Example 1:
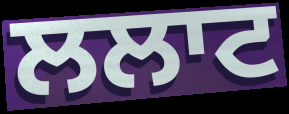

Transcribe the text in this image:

ਲਲਾਟ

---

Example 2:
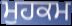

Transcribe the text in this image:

ਮੁਹਕਮ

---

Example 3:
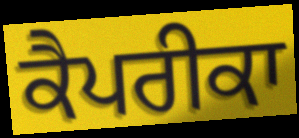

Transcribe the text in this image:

ਕੈਪਰੀਕਾ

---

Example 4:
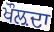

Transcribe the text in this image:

ਖੌਲ਼ਦਾ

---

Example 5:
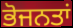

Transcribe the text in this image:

ਭੋਜਨਤਾਂ